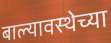
बाल्यावस्थेच्या